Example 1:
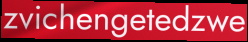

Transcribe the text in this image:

zvichengetedzwe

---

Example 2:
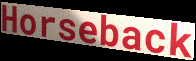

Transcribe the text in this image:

Horseback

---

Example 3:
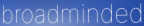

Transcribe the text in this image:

broadminded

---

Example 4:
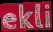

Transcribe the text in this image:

ekli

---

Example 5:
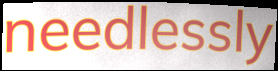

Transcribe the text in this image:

needlessly